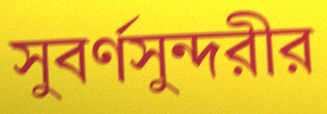
সুবর্ণসুন্দরীর